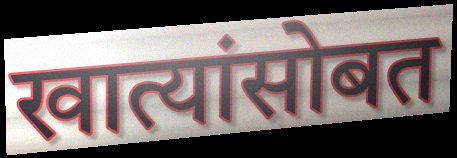
खात्यांसोबत